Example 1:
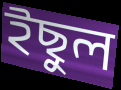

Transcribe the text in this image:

ইছুল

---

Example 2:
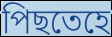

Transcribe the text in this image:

পিছতেহে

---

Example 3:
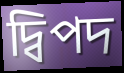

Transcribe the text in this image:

দ্বিপদ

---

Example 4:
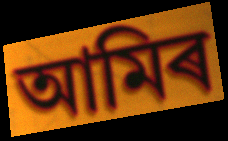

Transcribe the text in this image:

আমিৰ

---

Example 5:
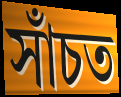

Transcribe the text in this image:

সাঁচত